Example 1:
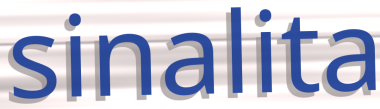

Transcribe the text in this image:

sinalita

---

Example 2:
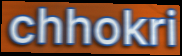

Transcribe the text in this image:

chhokri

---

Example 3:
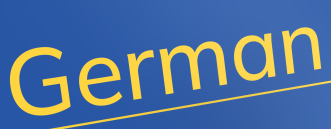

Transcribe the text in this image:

German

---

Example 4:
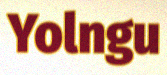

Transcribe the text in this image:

Yolngu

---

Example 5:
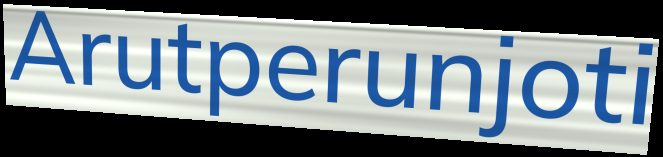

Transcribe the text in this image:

Arutperunjoti